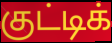
குட்டிக்